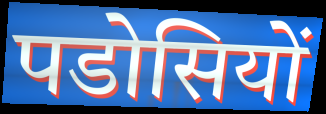
पडोसियों